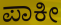
ಪಾಕೀ